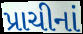
પ્રાચીનાં